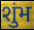
शुंभ